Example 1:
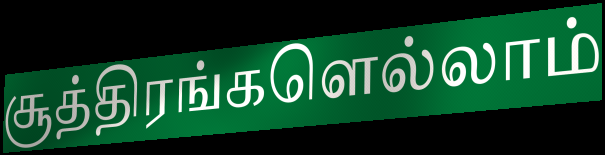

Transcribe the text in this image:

சூத்திரங்களெல்லாம்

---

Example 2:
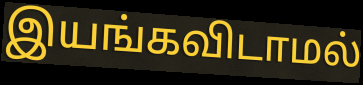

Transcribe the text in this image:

இயங்கவிடாமல்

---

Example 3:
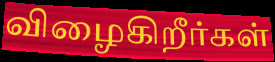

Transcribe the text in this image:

விழைகிறீர்கள்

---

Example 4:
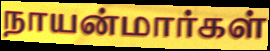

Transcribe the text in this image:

நாயன்மார்கள்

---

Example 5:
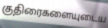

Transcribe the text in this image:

குதிரைகளையுடைய